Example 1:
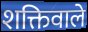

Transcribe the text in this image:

शक्तिवाले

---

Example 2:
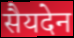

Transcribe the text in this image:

सैयदेन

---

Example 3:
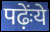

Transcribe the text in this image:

पढ़ेंःये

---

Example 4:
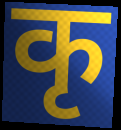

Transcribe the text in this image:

कृ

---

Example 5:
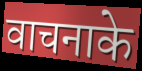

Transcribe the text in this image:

वाचनाके